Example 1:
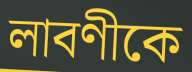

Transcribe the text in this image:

লাবণীকে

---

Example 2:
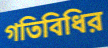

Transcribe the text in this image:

গতিবিধির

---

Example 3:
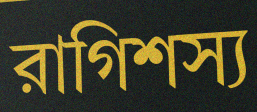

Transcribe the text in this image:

রাগিশস্য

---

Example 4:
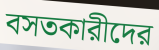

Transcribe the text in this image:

বসতকারীদের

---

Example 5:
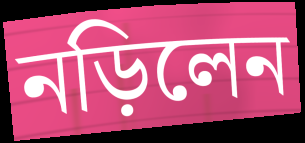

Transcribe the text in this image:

নড়িলেন